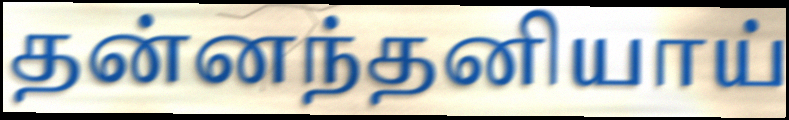
தன்னந்தனியாய்